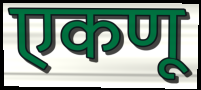
एकणू